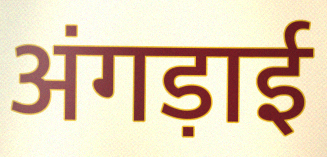
अंगड़ाई